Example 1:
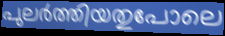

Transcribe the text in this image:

പുലർത്തിയതുപോലെ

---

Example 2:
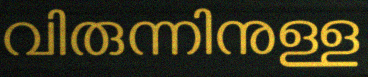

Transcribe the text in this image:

വിരുന്നിനുള്ള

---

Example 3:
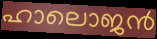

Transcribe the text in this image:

ഹാലൊജൻ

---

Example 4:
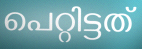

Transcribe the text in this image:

പെറ്റിട്ടത്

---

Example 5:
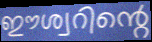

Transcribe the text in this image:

ഈശ്വറിന്റെ